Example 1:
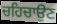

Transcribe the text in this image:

ਚਹਿਚਾਉਣ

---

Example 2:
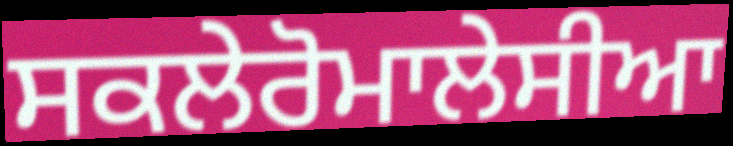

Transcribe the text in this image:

ਸਕਲੇਰੋਮਾਲੇਸੀਆ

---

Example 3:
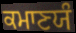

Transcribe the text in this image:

ਕਮਾਣਯੰ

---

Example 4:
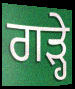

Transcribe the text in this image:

ਗੜ੍ਹੇ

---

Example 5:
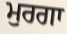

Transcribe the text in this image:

ਮੁਰਗਾ